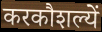
करकौशल्यें